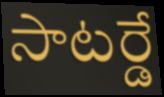
సాటర్డే